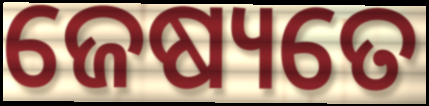
ଜେଷ୍ୟତେ